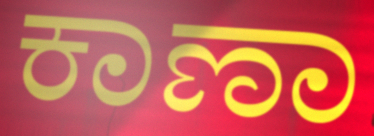
ಕಾಣಾ